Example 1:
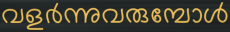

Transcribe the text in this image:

വളർന്നുവരുമ്പോൾ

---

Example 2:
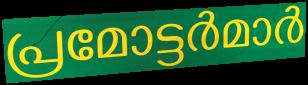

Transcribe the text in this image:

പ്രമോട്ടർമാർ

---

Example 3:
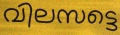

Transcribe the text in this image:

വിലസട്ടെ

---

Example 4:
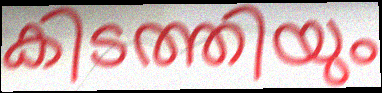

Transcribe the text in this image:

കിടത്തിയും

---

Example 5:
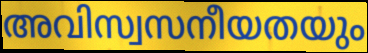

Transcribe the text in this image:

അവിസ്വസനീയതയും